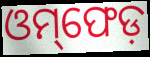
ଓମ୍‌ଫେଡ଼